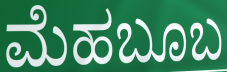
ಮೆಹಬೂಬ